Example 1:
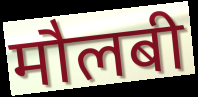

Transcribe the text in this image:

मौलबी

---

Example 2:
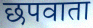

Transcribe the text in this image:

छपवाता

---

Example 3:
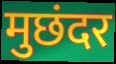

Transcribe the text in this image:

मुछंदर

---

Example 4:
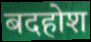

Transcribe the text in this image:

बदहोश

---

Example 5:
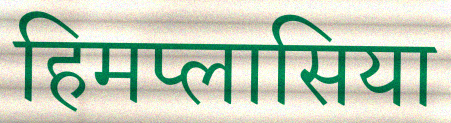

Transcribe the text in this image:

हिमप्लासिया